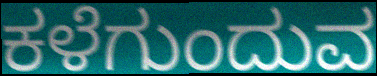
ಕಳೆಗುಂದುವ